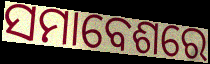
ସମାବେଶରେ